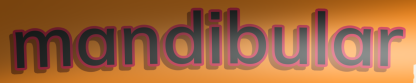
mandibular